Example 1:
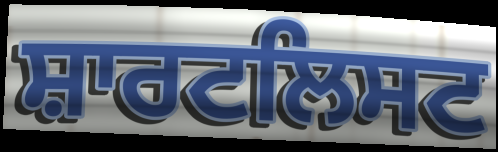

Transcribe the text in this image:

ਸ਼ਾਰਟਲਿਸਟ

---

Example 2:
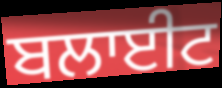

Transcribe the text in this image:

ਬਲਾਈਟ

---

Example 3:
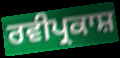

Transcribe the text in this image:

ਰਵੀਪ੍ਰਕਾਸ਼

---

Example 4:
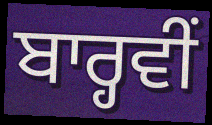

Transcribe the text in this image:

ਬਾਰ੍ਹਵੀਂ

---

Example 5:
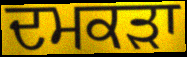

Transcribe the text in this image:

ਦਮਕੜਾ